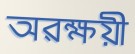
অৱক্ষয়ী